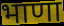
भाणा